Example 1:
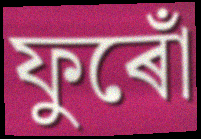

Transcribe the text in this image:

ফুৰোঁ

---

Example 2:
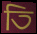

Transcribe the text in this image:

তি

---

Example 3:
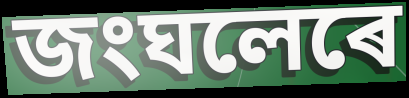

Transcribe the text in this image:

জংঘলেৰে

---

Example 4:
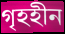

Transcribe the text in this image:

গৃহহীন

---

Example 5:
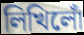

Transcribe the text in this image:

লিখিলোঁ